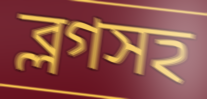
ব্লগসহ